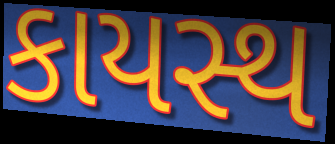
કાયસ્થ